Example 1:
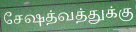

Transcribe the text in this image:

சேஷத்வத்துக்கு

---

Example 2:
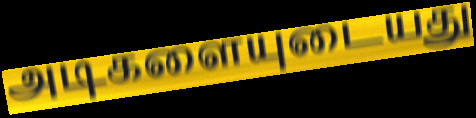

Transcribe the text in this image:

அடிகளையுடையது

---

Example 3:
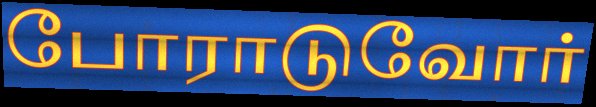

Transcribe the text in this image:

போராடுவோர்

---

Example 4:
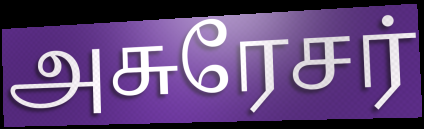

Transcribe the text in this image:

அசுரேசர்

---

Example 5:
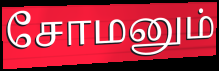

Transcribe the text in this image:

சோமனும்